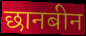
छानबीन